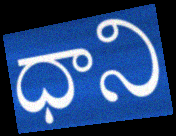
ధాని